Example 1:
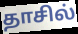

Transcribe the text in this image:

தாசில்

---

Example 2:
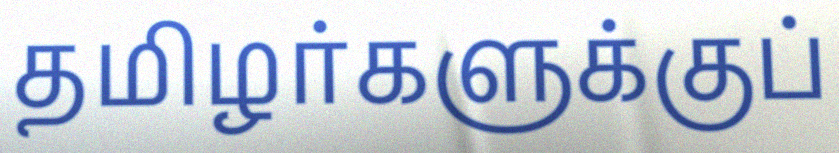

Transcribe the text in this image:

தமிழர்களுக்குப்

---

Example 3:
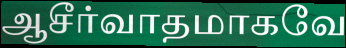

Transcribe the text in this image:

ஆசீர்வாதமாகவே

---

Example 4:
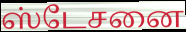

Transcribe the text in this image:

ஸ்டேசனை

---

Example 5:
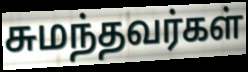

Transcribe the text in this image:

சுமந்தவர்கள்